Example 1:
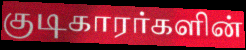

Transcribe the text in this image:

குடிகாரர்களின்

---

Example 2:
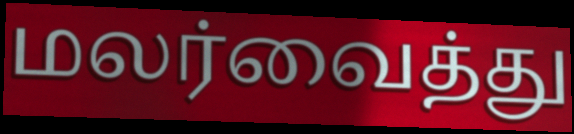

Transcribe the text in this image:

மலர்வைத்து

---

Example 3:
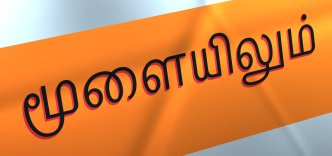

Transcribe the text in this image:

மூளையிலும்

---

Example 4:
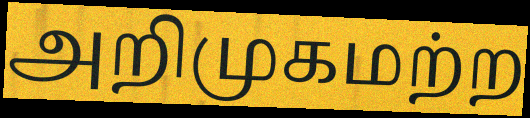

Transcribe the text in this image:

அறிமுகமற்ற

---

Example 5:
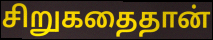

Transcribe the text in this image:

சிறுகதைதான்